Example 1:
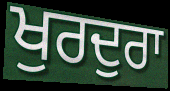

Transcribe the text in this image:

ਖੁਰਦੁਰਾ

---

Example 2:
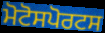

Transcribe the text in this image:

ਮੋਟੋਸਪੋਰਟਸ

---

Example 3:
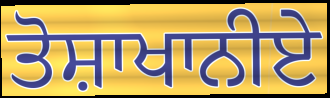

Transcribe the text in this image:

ਤੋਸ਼ਾਖਾਨੀਏ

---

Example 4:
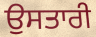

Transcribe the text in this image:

ਉਸਤਾਰੀ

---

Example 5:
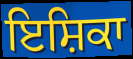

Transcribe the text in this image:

ਇਸ਼ਿਕਾ